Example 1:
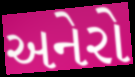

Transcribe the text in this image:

અનેરો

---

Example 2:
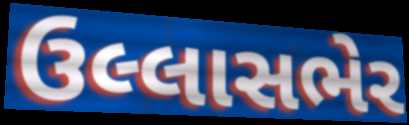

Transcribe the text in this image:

ઉલ્લાસભેર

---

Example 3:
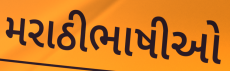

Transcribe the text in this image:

મરાઠીભાષીઓ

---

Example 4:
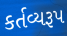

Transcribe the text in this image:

કર્તવ્યરૂપ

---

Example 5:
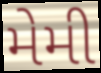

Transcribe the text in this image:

મેમી